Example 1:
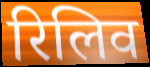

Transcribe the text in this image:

रिलिव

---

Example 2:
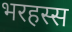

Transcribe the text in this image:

भरहस्स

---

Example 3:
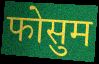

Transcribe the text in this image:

फोसुम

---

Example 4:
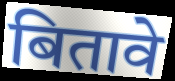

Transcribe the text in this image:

बितावे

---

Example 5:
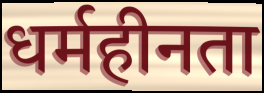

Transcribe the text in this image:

धर्महीनता